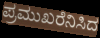
ಪ್ರಮುಖರೆನಿಸಿದ